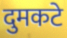
दुमकटे